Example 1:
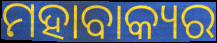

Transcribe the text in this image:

ମହାବାକ୍ୟର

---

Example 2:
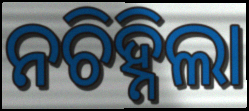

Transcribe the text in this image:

ନଚିହ୍ନିଲା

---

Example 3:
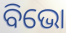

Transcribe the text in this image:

ବିଭୋ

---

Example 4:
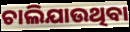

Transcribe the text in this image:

ଚାଲିଯାଉଥିବା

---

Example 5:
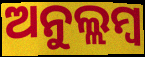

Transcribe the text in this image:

ଅନୁଲ୍ଲମ୍ବ